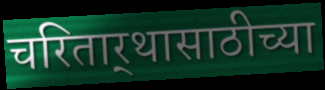
चरितार्थासाठीच्या